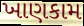
ખાણકામ